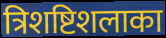
त्रिशष्टिशलाका